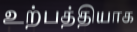
உற்பத்தியாக